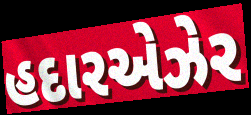
હદારએઝેર